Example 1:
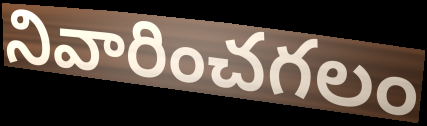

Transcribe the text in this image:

నివారించగలం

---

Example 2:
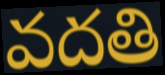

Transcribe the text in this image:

వదతి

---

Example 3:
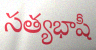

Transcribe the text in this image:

సత్యభాషీ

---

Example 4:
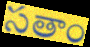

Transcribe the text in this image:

సతాం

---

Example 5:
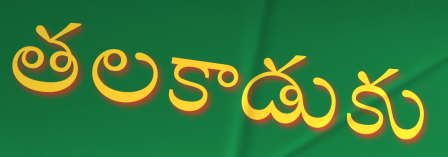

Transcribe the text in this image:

తలకాడుకు